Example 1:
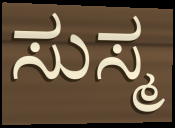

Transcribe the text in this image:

ಸುಸ್ಮ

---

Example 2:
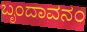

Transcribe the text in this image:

ಬೃಂದಾವನಂ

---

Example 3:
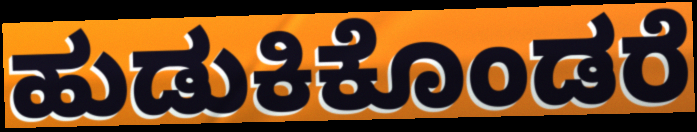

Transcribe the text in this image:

ಹುಡುಕಿಕೊಂಡರೆ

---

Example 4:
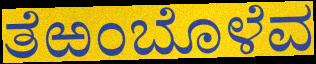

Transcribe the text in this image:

ತೆಱಂಬೊಳೆವ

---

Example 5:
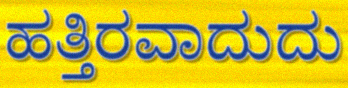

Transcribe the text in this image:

ಹತ್ತಿರವಾದುದು